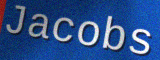
Jacobs